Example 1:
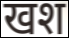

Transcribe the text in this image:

खश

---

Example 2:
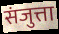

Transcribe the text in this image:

संजुत्ता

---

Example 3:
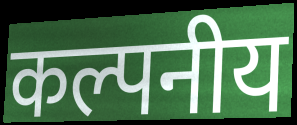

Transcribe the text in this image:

कल्पनीय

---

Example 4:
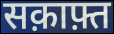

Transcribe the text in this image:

सक़ाफ़्त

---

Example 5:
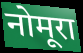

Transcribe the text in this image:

नोमूरा